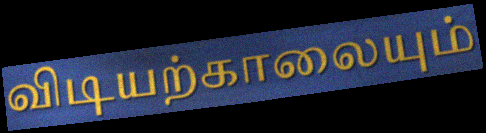
விடியற்காலையும்